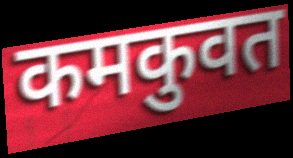
कमकुवत